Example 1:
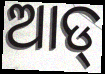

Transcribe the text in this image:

ଆଡ୍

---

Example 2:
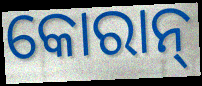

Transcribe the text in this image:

କୋରାନ୍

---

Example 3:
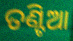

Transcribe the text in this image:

ତଣ୍ଟିଆ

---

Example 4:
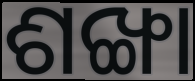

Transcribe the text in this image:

ଶଙ୍ଖା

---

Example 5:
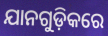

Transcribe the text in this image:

ଯାନଗୁଡ଼ିକରେ